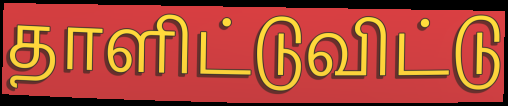
தாளிட்டுவிட்டு